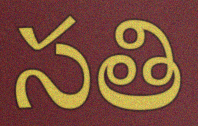
సతి